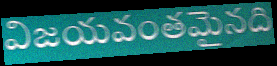
విజయవంతమైనది